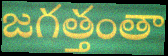
జగత్తంతా